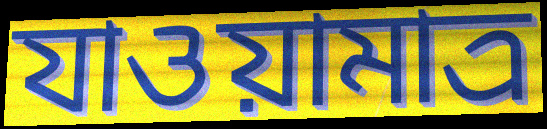
যাওয়ামাত্র